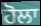
ਹੋਲਾ